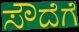
ಸೌದೆಗೆ